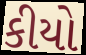
કીયો